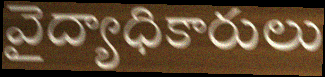
వైద్యాధికారులు